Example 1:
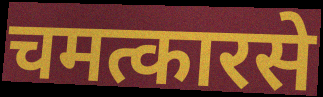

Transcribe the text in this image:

चमत्कारसे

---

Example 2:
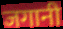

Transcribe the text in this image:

जगानी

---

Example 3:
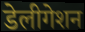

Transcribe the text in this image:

डेलीगेशन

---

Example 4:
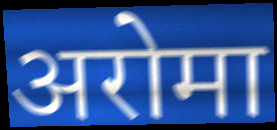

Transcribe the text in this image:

अरोमा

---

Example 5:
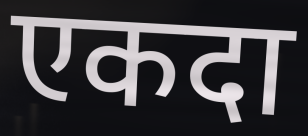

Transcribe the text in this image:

एकदा